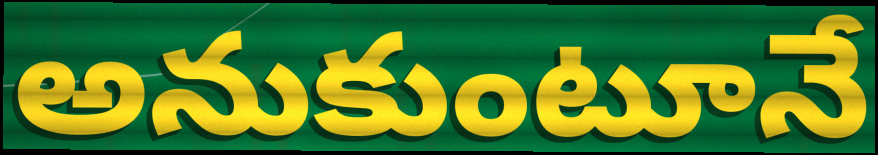
అనుకుంటూనే